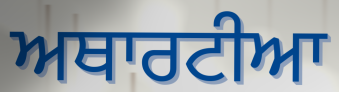
ਅਥਾਰਟੀਆ